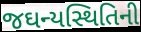
જઘન્યસ્થિતિની